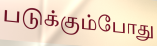
படுக்கும்போது